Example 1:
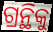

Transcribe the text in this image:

ଗ୍ରନ୍ଥିକୁ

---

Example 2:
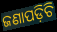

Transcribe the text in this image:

ଜଣାପଡ଼ିଚି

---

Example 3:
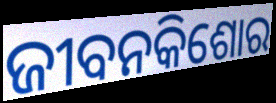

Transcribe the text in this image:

ଜୀବନକିଶୋର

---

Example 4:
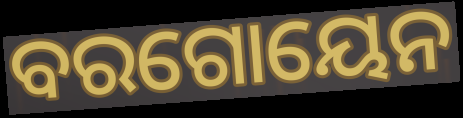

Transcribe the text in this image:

ବରଗୋୟେନ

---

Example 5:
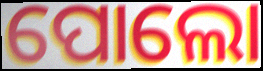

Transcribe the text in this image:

ପୋଲୋ